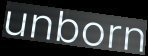
unborn